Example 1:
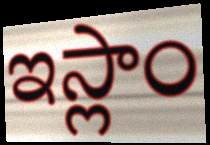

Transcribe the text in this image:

ఇస్లాం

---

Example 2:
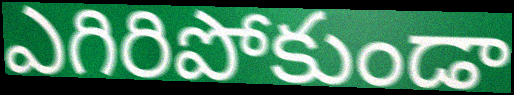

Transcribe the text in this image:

ఎగిరిపోకుండా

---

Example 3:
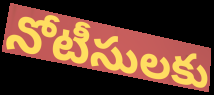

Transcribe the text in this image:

నోటీసులకు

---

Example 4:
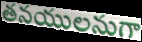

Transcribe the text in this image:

తనయులనుగా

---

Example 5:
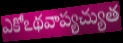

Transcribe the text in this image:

ఎకోఽథవాప్యచ్యుత